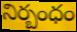
నిర్బంధం